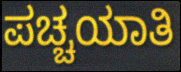
ಪಚ್ಚಯಾತಿ